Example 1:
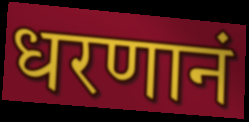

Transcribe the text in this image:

धरणानं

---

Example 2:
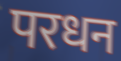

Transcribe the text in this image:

परधन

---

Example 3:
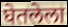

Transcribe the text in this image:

घेतलेला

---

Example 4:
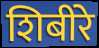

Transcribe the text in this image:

शिबीरे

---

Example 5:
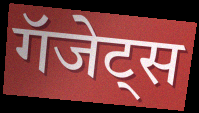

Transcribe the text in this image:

गॅजेट्स